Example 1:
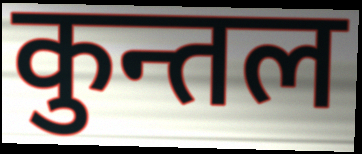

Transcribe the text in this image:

कुन्तल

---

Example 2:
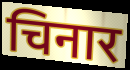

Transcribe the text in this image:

चिनार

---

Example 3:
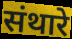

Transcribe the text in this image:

संथारे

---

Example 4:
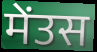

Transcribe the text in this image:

मेंउस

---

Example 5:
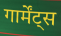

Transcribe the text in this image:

गार्मेंट्स